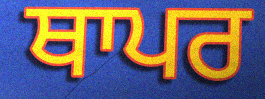
ਥਾਪਰ